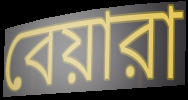
বেয়ারা